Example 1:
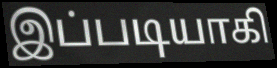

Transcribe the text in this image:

இப்படியாகி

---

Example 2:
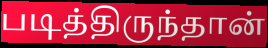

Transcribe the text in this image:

படித்திருந்தான்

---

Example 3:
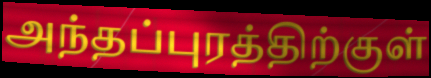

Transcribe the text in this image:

அந்தப்புரத்திற்குள்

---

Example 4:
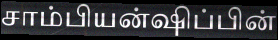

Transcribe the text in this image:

சாம்பியன்ஷிப்பின்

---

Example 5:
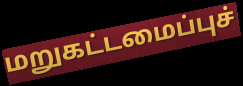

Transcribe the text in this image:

மறுகட்டமைப்புச்